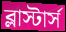
ব্লাস্টার্স